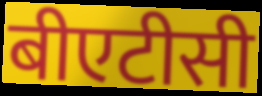
बीएटीसी